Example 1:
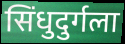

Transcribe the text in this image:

सिंधुदुर्गला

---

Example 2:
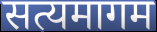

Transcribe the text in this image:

सत्यमागम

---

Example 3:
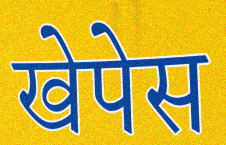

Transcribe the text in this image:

खेपेस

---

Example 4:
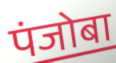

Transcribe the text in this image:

पंजोबा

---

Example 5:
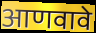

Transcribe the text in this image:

आणवावे